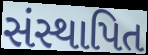
સંસ્થાપિત